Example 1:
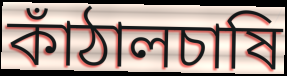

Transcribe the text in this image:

কাঁঠালচাষি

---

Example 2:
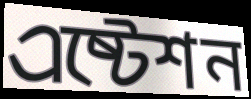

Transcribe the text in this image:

এষ্টেশন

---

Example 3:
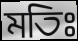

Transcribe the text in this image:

মতিঃ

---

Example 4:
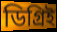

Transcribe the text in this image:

ডিগ্রিই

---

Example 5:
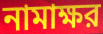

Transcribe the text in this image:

নামাক্ষর